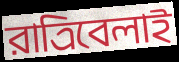
রাত্রিবেলাই